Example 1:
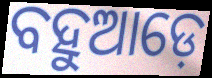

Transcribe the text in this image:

ବହୁଆଡ଼େ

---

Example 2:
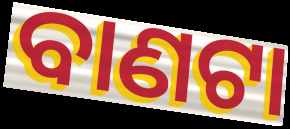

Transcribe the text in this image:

ବାଣଟା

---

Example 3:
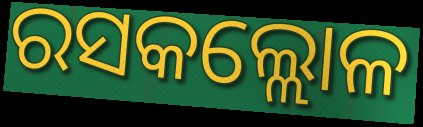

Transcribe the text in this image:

ରସକଲ୍ଲୋଳ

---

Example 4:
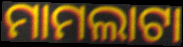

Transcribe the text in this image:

ମାମଲାଟା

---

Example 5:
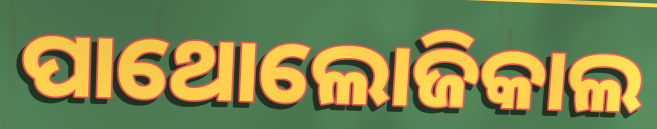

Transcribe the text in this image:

ପାଥୋଲୋଜିକାଲ